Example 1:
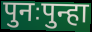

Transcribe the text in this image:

पुनःपुन्हा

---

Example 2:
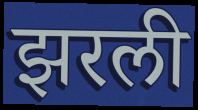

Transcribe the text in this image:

झरली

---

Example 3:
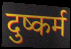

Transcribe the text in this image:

दुष्कर्म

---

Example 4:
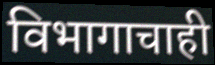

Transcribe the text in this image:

विभागाचाही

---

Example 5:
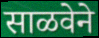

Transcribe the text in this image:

साळवेने